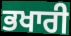
ਭਖਾਰੀ